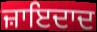
ਜ਼ਾਇਦਾਦ